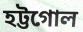
হট্টগোল